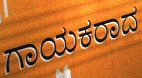
ಗಾಯಕರಾದ